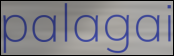
palagai